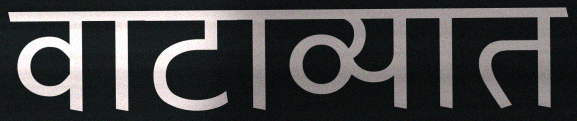
वाटाव्यात